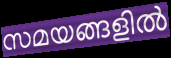
സമയങ്ങളിൽ